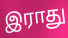
இராது